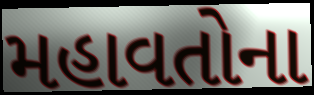
મહાવતોના